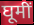
घूमीं